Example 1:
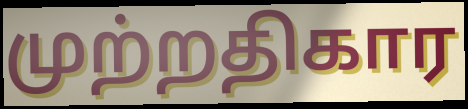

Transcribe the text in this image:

முற்றதிகார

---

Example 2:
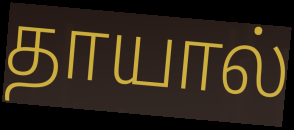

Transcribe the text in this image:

தாயால்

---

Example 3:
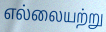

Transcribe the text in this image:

எல்லையற்று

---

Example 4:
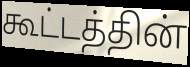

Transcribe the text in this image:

கூட்டத்தின்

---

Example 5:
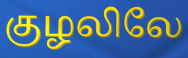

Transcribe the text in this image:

குழலிலே